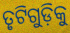
ତୃଟିଗୁଡ଼ିକୁ